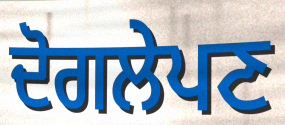
ਦੋਗਲੇਪਣ